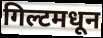
गिल्टमधून